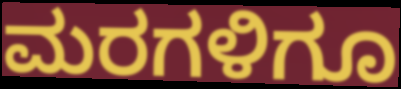
ಮರಗಳಿಗೂ